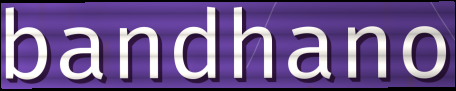
bandhano